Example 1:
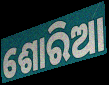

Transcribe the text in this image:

ଶୋରିଆ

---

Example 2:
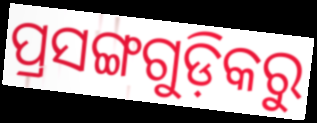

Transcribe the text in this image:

ପ୍ରସଙ୍ଗଗୁଡ଼ିକରୁ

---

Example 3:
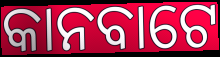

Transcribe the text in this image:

କାନବାଟେ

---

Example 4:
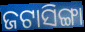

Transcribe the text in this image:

ଜଟାସିଙ୍ଗା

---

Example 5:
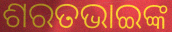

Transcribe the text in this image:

ଶରତଭାଇଙ୍କ